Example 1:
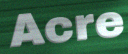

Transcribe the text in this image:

Acre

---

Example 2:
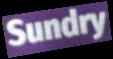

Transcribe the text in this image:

Sundry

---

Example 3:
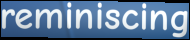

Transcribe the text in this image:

reminiscing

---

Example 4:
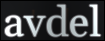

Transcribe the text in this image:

avdel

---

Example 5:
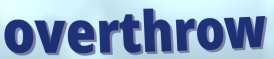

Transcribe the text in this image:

overthrow